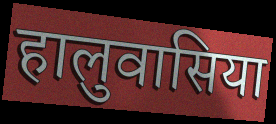
हालुवासिया